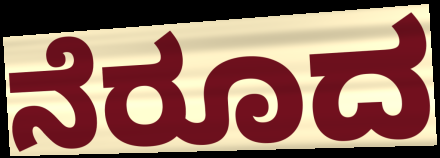
ನೆರೂದ